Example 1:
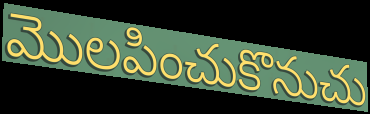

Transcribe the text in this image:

మొలపించుకొనుచు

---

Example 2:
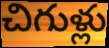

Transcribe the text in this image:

చిగుళ్లు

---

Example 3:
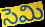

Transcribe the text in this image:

సెమి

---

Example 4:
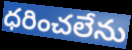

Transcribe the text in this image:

ధరించలేను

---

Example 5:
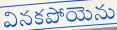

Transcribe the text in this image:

వినకపోయెను